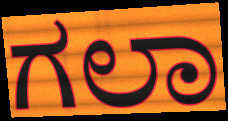
ಗಲಾ